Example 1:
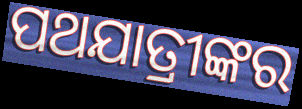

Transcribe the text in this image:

ପଥଯାତ୍ରୀଙ୍କର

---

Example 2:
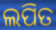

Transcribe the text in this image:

ଲପିତ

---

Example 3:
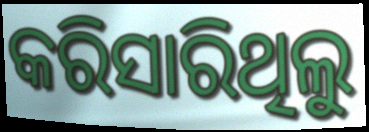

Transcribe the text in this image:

କରିସାରିଥିଲୁ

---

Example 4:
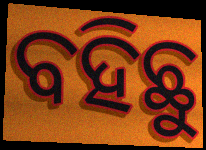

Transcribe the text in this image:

ବହିଛୁ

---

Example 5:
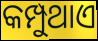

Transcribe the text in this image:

କମ୍ପୁଥାଏ